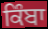
ਕਿੰਬਾ